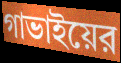
গাভাইয়ের